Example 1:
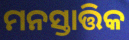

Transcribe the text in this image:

ମନସ୍ତାତ୍ତିକ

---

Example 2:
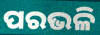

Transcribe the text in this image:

ପରଭଳି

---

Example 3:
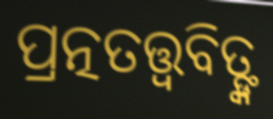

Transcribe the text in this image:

ପ୍ରତ୍ନତତ୍ତ୍ୱବିତ୍ଙ୍କ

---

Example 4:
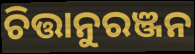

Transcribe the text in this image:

ଚିତ୍ତାନୁରଞ୍ଜନ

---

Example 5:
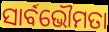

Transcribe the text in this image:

ସାର୍ବଭୌମତା